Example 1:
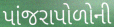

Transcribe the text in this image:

પાંજરાપોળોની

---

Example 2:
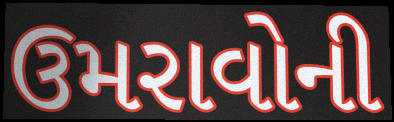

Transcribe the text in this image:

ઉમરાવોની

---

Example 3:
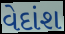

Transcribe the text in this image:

વેદાંશ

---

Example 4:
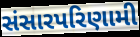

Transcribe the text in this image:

સંસારપરિણામી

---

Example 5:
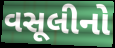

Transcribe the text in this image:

વસૂલીનો